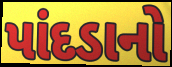
પાંદડાનો